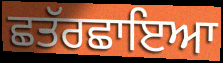
ਛਤੱਰਛਾਇਆ